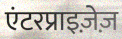
एंटरप्राइज़ेज़